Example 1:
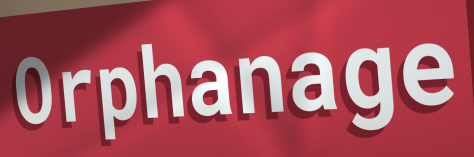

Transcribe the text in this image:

Orphanage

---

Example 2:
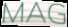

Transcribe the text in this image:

MAG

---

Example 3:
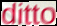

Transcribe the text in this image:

ditto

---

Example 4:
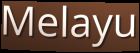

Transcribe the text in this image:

Melayu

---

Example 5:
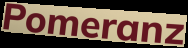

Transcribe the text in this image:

Pomeranz